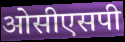
ओसीएसपी